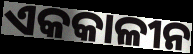
ଏକକାଳୀନ